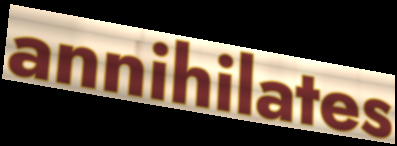
annihilates